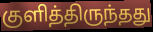
குளித்திருந்தது